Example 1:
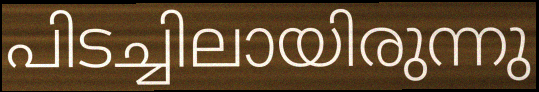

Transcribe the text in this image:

പിടച്ചിലായിരുന്നു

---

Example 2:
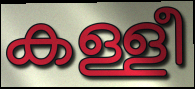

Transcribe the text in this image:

കള്ളീ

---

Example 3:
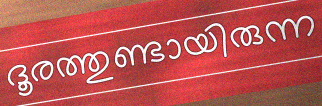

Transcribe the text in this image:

ദൂരത്തുണ്ടായിരുന്ന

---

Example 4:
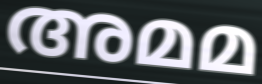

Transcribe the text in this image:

അമമ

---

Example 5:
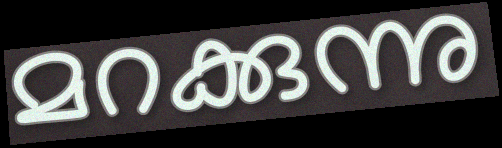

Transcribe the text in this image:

മറക്കുന്നു